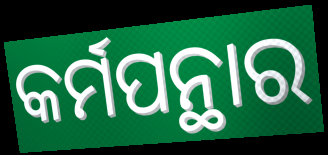
କର୍ମପନ୍ଥାର